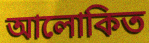
আলোকিত